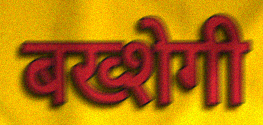
बख्शेगी